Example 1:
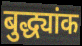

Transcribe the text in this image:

बुद्ध्यांक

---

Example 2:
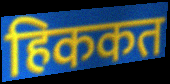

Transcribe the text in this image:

हिककत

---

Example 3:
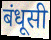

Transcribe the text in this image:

बंधूसी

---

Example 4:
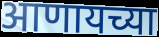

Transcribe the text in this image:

आणायच्या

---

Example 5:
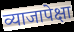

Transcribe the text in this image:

व्याजापेक्षा